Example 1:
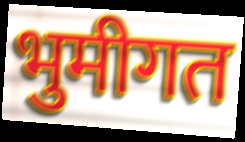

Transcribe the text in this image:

भुमीगत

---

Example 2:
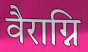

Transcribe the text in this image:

वैराग्नि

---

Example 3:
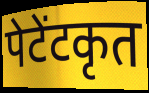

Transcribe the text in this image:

पेटेंटकृत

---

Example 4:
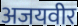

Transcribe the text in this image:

अजयवीर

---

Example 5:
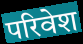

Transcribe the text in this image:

परिवेश